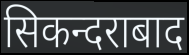
सिकन्दराबाद